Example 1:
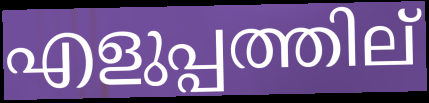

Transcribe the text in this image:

എളുപ്പത്തില്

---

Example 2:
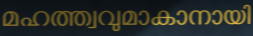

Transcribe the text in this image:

മഹത്ത്വവുമാകാനായി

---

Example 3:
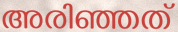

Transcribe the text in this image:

അരിഞ്ഞത്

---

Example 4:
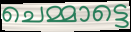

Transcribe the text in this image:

ചെമ്മാട്ടെ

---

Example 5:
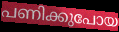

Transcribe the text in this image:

പണിക്കുപോയ